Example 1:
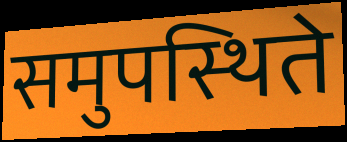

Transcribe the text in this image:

समुपस्थिते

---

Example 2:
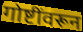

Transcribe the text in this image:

गोष्टींवरून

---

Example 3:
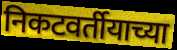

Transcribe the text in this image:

निकटवर्तीयाच्या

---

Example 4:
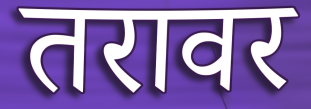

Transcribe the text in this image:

तरावर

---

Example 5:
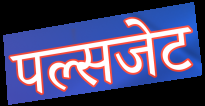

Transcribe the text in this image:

पल्सजेट